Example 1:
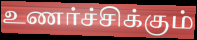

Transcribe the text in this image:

உணர்ச்சிக்கும்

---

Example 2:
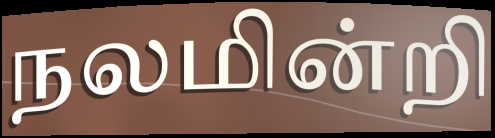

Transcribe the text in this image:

நலமின்றி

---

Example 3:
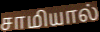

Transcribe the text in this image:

சாமியால்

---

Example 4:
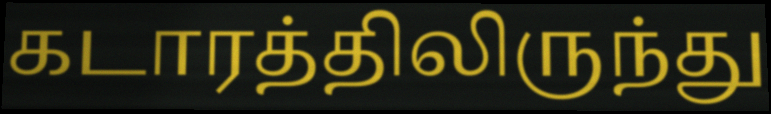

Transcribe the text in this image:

கடாரத்திலிருந்து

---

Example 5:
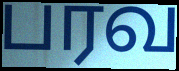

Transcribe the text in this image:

பரவ